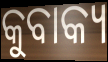
କୁବାକ୍ୟ